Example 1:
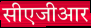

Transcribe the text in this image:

सीएजीआर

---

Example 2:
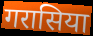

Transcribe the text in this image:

गरासिया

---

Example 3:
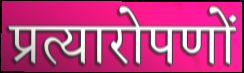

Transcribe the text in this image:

प्रत्यारोपणों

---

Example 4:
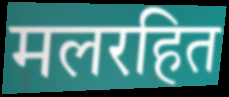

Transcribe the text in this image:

मलरहित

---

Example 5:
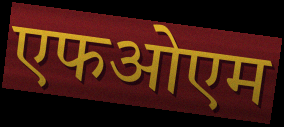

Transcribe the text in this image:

एफओएम